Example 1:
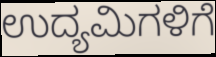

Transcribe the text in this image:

ಉದ್ಯಮಿಗಳಿಗೆ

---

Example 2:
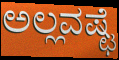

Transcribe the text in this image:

ಅಲ್ಲವಷ್ಟೆ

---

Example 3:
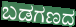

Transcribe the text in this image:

ಬಡಗಣದ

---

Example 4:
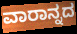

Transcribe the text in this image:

ವಾರಾನ್ನದ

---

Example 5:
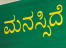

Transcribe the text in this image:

ಮನಸ್ಸಿದೆ